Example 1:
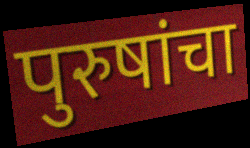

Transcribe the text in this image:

पुरुषांचा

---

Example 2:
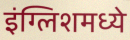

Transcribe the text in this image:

इंग्लिशमध्ये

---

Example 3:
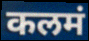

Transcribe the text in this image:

कलमं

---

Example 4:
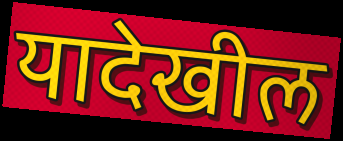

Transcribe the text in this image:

यादेखील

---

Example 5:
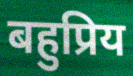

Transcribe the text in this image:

बहुप्रिय